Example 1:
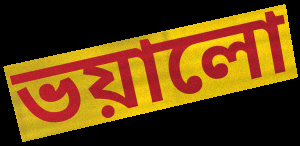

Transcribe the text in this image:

ভয়ালো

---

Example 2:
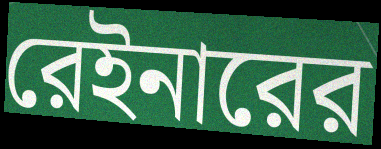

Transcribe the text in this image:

রেইনারের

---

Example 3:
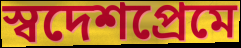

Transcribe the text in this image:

স্বদেশপ্রেমে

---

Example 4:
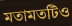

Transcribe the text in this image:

মতামতটিও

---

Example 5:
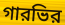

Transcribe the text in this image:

গারভির